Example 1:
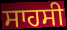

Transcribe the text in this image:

ਸਾਹਸੀ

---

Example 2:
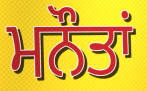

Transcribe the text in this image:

ਮਨੌਤਾਂ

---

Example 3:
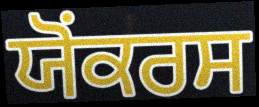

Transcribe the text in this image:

ਯੋੰਕਰਸ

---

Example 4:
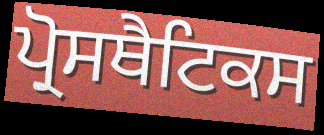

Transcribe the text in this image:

ਪ੍ਰੋਸਥੈਟਿਕਸ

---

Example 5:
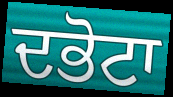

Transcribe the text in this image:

ਦਭੋਟਾ